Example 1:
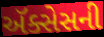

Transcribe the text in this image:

ઍક્સેસની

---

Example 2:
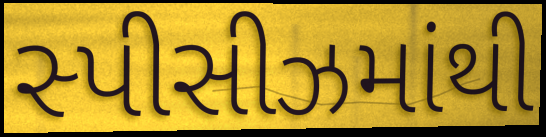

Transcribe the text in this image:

સ્પીસીઝમાંથી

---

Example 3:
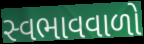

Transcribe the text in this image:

સ્વભાવવાળો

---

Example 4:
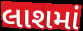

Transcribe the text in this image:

લાશમાં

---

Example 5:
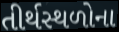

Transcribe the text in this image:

તીર્થસ્થળોના